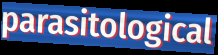
parasitological